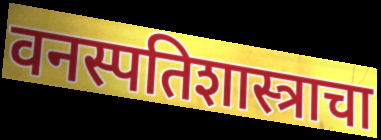
वनस्पतिशास्त्राचा